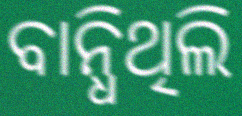
ବାନ୍ଧିଥିଲି